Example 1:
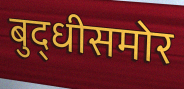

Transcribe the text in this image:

बुद्धीसमोर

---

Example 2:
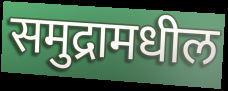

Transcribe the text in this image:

समुद्रामधील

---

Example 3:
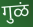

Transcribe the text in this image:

गुळं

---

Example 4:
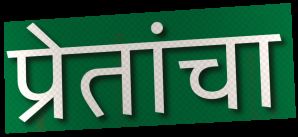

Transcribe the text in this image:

प्रेतांचा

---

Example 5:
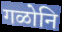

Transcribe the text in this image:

गळोनि